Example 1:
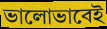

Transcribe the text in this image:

ভালোভাবেই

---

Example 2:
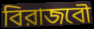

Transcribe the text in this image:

বিরাজবৌ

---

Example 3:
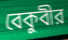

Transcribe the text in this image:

বেকুবীর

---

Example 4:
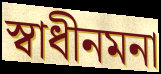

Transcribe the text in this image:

স্বাধীনমনা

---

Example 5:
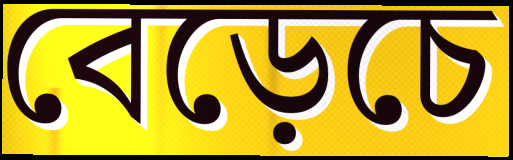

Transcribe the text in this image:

বেড়েচে